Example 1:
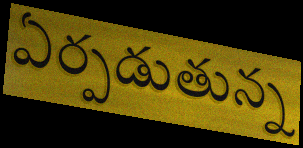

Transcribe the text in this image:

ఏర్పడుతున్న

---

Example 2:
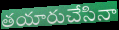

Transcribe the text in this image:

తయారుచేసినా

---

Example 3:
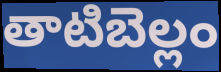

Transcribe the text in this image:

తాటిబెల్లం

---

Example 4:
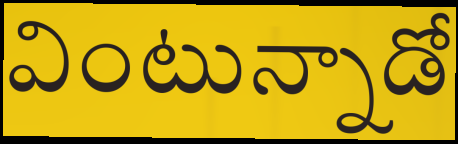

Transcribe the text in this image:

వింటున్నాడో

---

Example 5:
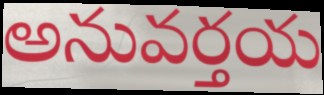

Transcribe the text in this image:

అనువర్తయ